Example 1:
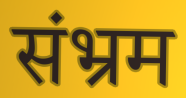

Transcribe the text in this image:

संभ्रम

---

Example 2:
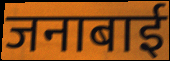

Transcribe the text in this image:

जनाबाई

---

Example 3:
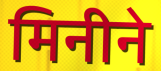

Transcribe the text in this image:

मिनीने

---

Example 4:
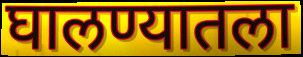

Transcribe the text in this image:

घालण्यातला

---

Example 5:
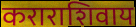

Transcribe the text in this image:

कराराशिवाय